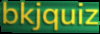
bkjquiz